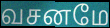
வசனமே